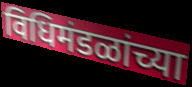
विधिमंडळांच्या